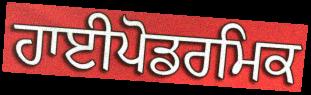
ਹਾਈਪੋਡਰਮਿਕ